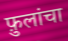
फ़ुलांचा